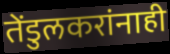
तेंडुलकरांनाही